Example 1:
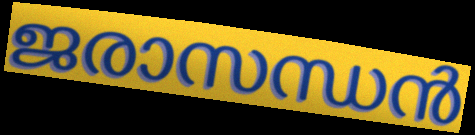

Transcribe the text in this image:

ജരാസന്ധൻ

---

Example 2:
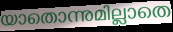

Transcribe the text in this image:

യാതൊന്നുമില്ലാതെ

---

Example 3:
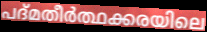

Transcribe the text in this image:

പദ്മതീർത്ഥക്കരയിലെ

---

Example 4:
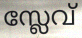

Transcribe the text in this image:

സ്ലേവ്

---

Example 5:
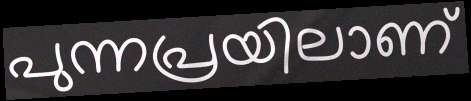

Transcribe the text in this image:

പുന്നപ്രയിലാണ്